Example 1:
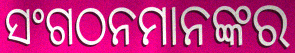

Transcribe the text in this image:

ସଂଗଠନମାନଙ୍କର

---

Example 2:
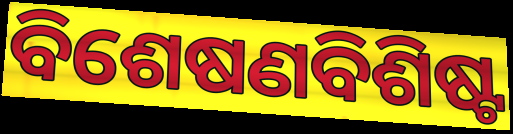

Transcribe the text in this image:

ବିଶେଷଣବିଶିଷ୍ଟ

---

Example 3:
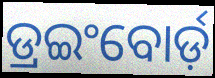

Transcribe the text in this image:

ଡ୍ରଇଂବୋର୍ଡ଼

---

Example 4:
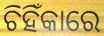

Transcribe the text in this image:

ଚିହିଁକାରେ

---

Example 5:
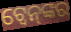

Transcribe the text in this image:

ଟ୍ୱେନ୍‌ଙ୍କର